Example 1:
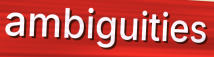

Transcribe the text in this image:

ambiguities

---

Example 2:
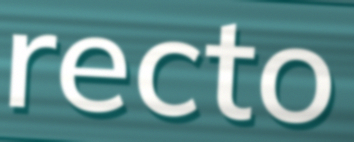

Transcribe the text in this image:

recto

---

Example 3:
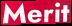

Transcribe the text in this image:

Merit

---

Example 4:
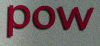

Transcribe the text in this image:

pow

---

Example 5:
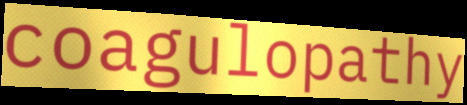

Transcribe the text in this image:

coagulopathy